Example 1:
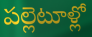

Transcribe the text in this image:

పల్లెటూళ్లో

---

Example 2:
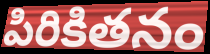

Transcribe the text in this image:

పిరికితనం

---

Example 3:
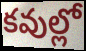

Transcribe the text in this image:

కవుల్లో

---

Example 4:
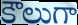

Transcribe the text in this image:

కౌలుగా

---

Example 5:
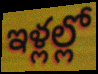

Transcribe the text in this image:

ఇళ్లల్లో